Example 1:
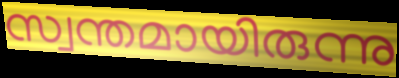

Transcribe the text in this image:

സ്വന്തമായിരുന്നു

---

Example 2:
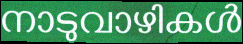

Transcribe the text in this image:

നാടുവാഴികൾ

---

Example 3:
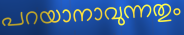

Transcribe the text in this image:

പറയാനാവുന്നതും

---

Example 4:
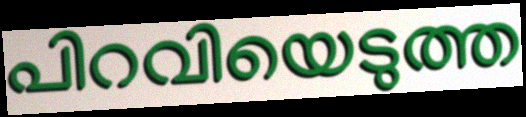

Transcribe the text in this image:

പിറവിയെടുത്ത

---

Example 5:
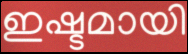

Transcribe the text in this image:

ഇഷ്ടമായി